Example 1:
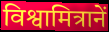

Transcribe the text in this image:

विश्वामित्रानें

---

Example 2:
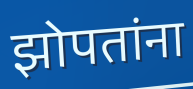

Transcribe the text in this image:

झोपतांना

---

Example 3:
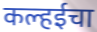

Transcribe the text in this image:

कल्हईचा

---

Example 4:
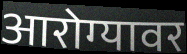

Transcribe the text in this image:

आरोग्यावर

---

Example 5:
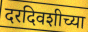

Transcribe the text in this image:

दरदिवशीच्या